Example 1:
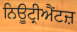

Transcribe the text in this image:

ਨਿਊਟ੍ਰੀਐਂਟਜ਼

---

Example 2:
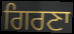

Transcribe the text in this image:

ਗਿਰਣਾ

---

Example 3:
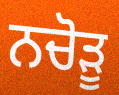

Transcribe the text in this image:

ਨਚੋੜੂ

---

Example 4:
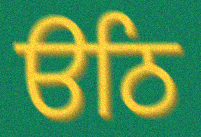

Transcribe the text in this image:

ੳਠਿ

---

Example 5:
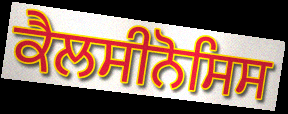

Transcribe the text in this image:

ਕੈਲਸੀਨੋਸਿਸ